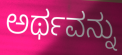
ಅರ್ಥವನ್ನು